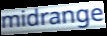
midrange